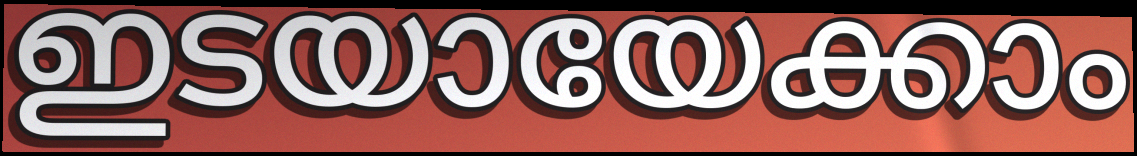
ഇടയായേക്കാം